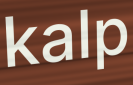
kalp